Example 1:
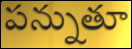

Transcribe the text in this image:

పన్నుతూ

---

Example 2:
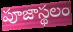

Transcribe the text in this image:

పూజాస్థలం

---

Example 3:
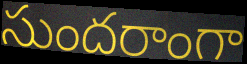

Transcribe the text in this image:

సుందరాంగా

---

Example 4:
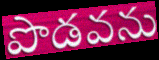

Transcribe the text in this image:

పొడవను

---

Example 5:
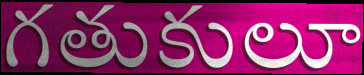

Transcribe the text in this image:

గతుకులూ